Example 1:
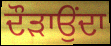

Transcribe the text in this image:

ਦੌੜਾਉਂਦਾ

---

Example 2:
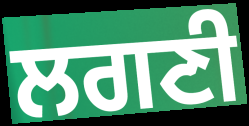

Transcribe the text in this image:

ਲਗਣੀ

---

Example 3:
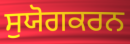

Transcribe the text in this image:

ਸੁਯੋਗਕਰਨ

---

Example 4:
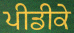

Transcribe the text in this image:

ਪੀਡੀਕੇ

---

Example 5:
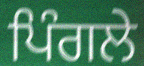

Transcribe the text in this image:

ਪਿੰਗਲੇ